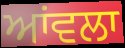
ਆਂਵਲਾ